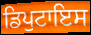
ਡਿਪੁਟਾਇਸ